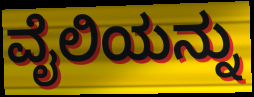
ವೈಲಿಯನ್ನು